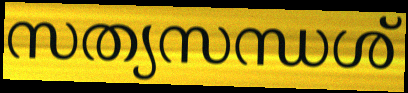
സത്യസന്ധശ്